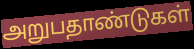
அறுபதாண்டுகள்